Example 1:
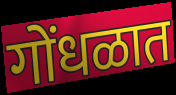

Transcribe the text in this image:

गोंधळात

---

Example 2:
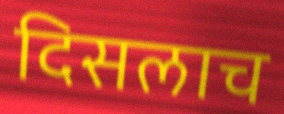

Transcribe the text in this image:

दिसलाच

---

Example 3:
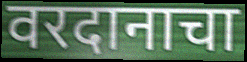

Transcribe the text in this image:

वरदानाचा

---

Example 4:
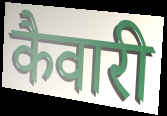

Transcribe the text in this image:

कैवारी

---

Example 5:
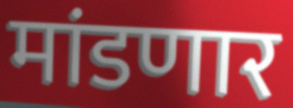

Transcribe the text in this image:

मांडणार